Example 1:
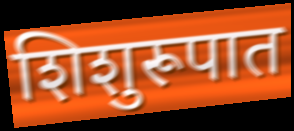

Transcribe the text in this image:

शिशुरूपात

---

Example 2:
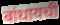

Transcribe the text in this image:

बांधायची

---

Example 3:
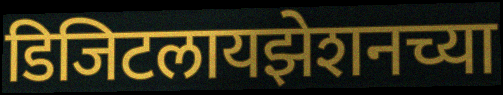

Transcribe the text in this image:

डिजिटलायझेशनच्या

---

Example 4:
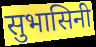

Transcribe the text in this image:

सुभासिनी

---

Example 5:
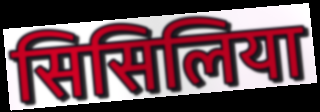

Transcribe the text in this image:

सिसिलिया